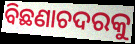
ବିଛଣାଚଦରକୁ